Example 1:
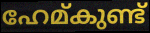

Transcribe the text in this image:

ഹേമ്കുണ്ട്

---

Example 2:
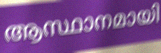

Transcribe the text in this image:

ആസ്ഥാനമായി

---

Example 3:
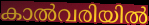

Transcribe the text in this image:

കാൽവരിയിൽ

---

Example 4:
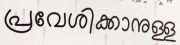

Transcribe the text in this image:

പ്രവേശിക്കാനുള്ള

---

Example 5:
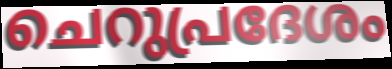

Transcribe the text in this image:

ചെറുപ്രദേശം